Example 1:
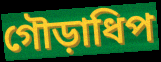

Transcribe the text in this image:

গৌড়াধিপ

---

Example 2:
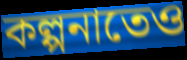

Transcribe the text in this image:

কল্পনাতেও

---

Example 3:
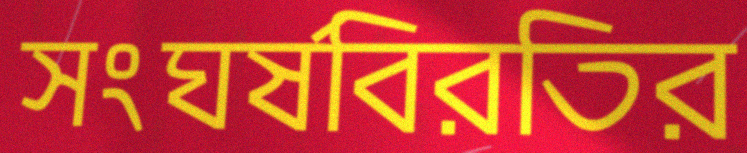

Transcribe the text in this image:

সংঘর্ষবিরতির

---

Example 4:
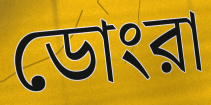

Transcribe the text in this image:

ডোংরা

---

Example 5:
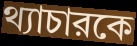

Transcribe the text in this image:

থ্যাচারকে